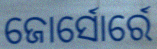
ଜୋର୍ସୋର୍ରେ